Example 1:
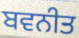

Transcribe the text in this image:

ਬਵਨੀਤ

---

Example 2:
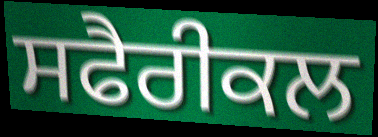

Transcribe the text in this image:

ਸਫੈਰੀਕਲ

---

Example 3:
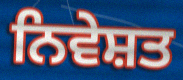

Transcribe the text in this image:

ਨਿਵੇਸ਼ਤ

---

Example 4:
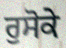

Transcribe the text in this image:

ਰੁਸੋਕੇ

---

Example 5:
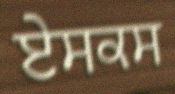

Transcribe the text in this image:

ਏਸਕਸ